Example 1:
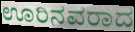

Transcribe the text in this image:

ಊರಿನವರಾದ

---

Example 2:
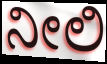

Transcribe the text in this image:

ನೀಲಿ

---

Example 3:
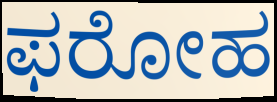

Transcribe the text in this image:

ಫರೋಹ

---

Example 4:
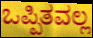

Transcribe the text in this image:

ಒಪ್ಪಿತವಲ್ಲ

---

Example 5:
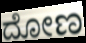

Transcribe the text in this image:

ದೋಣ